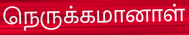
நெருக்கமானாள்